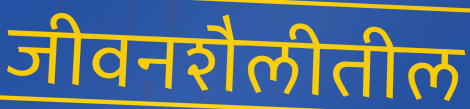
जीवनशैलीतील